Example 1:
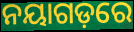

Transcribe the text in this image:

ନୟାଗଡ଼ରେ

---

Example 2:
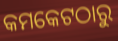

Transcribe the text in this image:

କମକେଟଠାରୁ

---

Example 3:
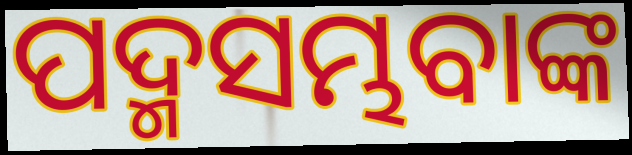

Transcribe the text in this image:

ପଦ୍ମସମ୍ଭବାଙ୍କ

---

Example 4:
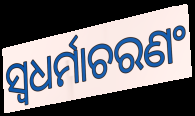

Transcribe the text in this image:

ସ୍ୱଧର୍ମାଚରଣଂ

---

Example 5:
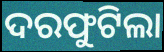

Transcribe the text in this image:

ଦରଫୁଟିଲା